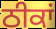
ਠੀਕਾਂ